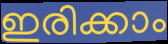
ഇരിക്കാം